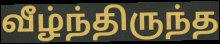
வீழ்ந்திருந்த